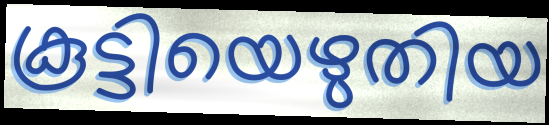
കൂട്ടിയെഴുതിയ